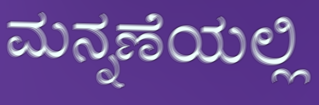
ಮನ್ನಣೆಯಲ್ಲಿ